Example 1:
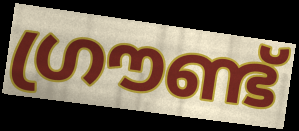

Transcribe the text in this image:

ഗ്രൗണ്ട്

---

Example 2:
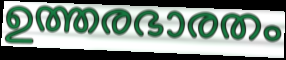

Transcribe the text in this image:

ഉത്തരഭാരതം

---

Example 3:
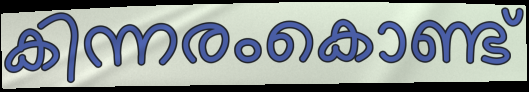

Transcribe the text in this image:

കിന്നരംകൊണ്ട്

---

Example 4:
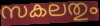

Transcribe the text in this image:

സകലതും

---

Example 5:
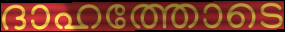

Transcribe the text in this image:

ദാഹത്തോടെ